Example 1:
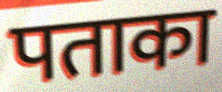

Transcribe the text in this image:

पताका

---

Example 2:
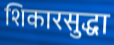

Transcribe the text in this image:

शिकारसुद्धा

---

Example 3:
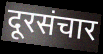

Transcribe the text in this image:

दूरसंचार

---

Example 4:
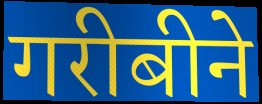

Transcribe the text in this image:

गरीबीने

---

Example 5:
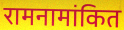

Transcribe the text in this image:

रामनामांकित